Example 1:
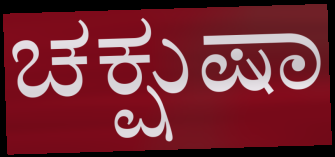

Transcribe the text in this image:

ಚಕ್ಷುಷಾ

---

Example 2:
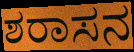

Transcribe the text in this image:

ಶರಾಸನ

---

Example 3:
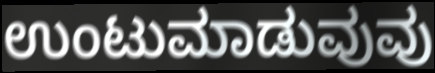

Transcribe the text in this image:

ಉಂಟುಮಾಡುವುವು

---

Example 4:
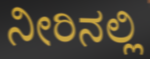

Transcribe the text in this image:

ನೀರಿನಲ್ಲಿ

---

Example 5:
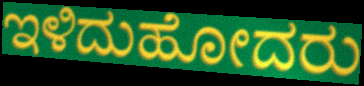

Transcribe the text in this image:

ಇಳಿದುಹೋದರು